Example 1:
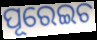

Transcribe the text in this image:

ପୂରେଇଚ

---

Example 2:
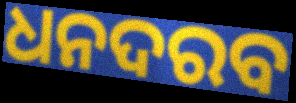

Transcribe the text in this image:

ଧନଦରବ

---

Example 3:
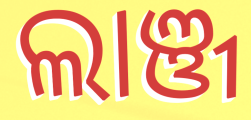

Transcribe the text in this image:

ଲାଞ୍ଜ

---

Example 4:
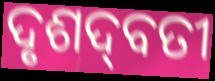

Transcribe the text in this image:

ଦୃଶଦ୍‌ବତୀ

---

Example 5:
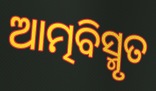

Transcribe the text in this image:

ଆତ୍ମବିସ୍ମୃତ